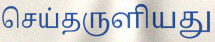
செய்தருளியது